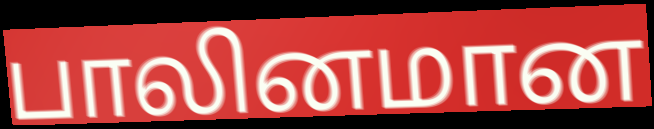
பாலினமான